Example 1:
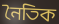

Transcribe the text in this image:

নৈতিক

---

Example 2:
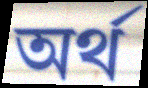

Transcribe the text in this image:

অৰ্থ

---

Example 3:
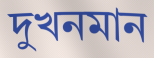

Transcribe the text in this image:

দুখনমান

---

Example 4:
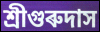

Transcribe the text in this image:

শ্ৰীগুৰুদাস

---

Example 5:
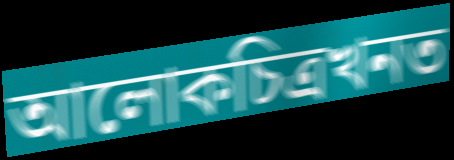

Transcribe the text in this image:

আলোকচিত্ৰখনত